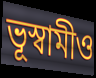
ভূস্বামীও